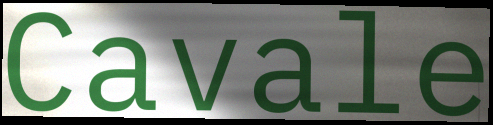
Cavale